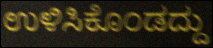
ಉಳಿಸಿಕೊಂಡದ್ದು